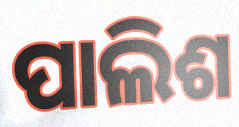
ପାଲିଶ